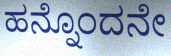
ಹನ್ನೊಂದನೇ